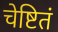
चेष्टितं